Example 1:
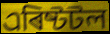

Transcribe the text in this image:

এৰিষ্টটল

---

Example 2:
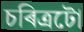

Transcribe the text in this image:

চৰিত্ৰটো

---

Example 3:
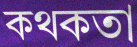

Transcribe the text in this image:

কথকতা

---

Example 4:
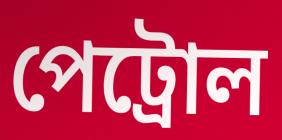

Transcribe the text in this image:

পেট্ৰোল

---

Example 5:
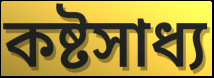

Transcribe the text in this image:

কষ্টসাধ্য